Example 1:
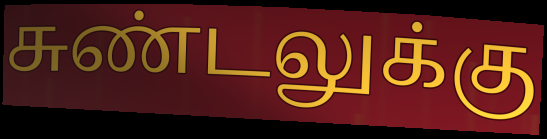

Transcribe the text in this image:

சுண்டலுக்கு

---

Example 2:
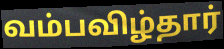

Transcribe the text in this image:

வம்பவிழ்தார்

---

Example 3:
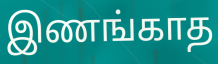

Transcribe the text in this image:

இணங்காத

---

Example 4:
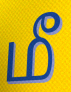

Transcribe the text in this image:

மீ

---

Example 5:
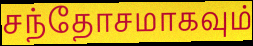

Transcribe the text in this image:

சந்தோசமாகவும்